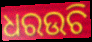
ଧରଉଚି